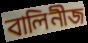
বালিনীজ